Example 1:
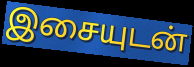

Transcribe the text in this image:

இசையுடன்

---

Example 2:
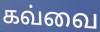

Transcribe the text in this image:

கவ்வை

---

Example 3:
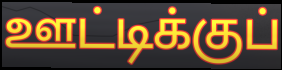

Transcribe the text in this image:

ஊட்டிக்குப்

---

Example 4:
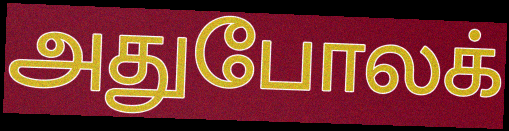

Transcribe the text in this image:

அதுபோலக்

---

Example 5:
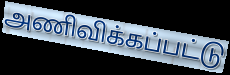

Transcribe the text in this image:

அணிவிக்கப்பட்டு